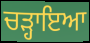
ਚੜ੍ਹਾਇਆ